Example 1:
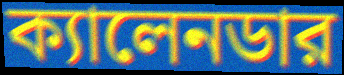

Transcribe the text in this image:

ক্যালেনডার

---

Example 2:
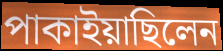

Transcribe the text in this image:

পাকাইয়াছিলেন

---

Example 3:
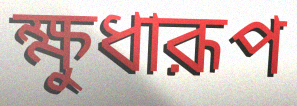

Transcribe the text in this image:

ক্ষুধারূপ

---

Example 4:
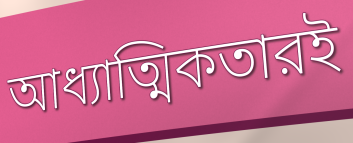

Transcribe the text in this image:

আধ্যাত্মিকতারই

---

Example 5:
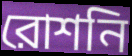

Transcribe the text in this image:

রোশনি